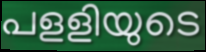
പളളിയുടെ